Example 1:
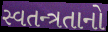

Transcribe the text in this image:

સ્વતન્ત્રતાનો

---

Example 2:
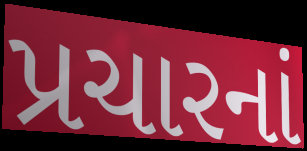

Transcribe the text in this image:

પ્રચારનાં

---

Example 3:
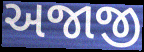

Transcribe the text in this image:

અજાજી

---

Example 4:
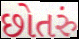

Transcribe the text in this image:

છોતરું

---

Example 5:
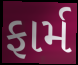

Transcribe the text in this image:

ફાર્મ